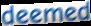
deemed